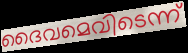
ദൈവമെവിടെന്ന്